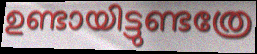
ഉണ്ടായിട്ടുണ്ടത്രേ